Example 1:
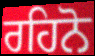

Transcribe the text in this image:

ਰਹਿਨੋ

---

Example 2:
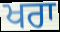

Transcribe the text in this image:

ਖਰਾ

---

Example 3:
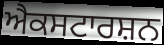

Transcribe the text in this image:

ਐਕਸਟਾਰਸ਼ਨ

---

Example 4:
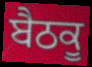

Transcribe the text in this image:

ਬੈਠਕੂ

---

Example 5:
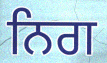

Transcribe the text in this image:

ਨਿਗ